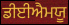
ਡੀਈਐਮਯੂ